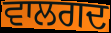
ਵਾਲਗਦ